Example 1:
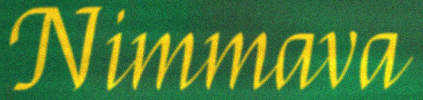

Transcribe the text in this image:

Nimmava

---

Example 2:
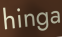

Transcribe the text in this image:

hinga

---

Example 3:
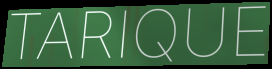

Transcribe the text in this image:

TARIQUE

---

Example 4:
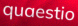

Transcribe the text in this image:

quaestio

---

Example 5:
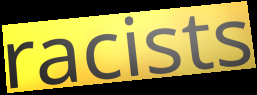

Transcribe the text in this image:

racists